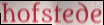
hofstede